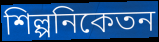
শিল্পনিকেতন